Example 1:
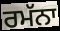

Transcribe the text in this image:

ਰਮੱਨਾ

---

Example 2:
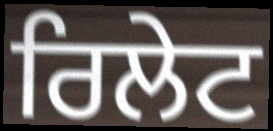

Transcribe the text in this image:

ਰਿਲੇਟ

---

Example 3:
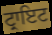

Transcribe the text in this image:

ਟ੍ਰਾਇਟ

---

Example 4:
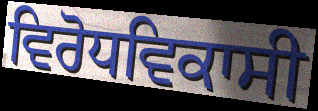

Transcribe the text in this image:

ਵਿਰੋਧਵਿਕਾਸੀ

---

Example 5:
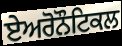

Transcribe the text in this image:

ਏਅਰੋਨੌਟਿਕਲ